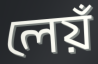
লেয়ঁ